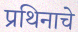
प्रथिनाचे